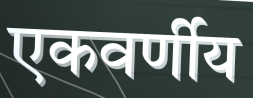
एकवर्णीय